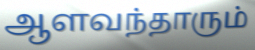
ஆளவந்தாரும்